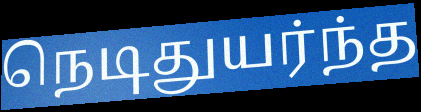
நெடிதுயர்ந்த